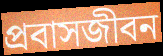
প্রবাসজীবন